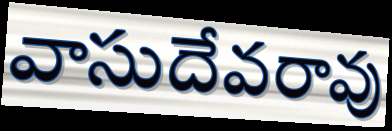
వాసుదేవరావు